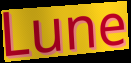
Lune